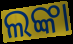
ଲଙ୍କା